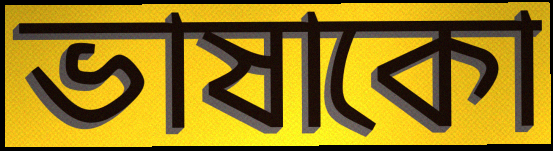
ভাষাকো